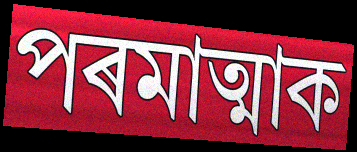
পৰমাত্মাক